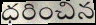
ధరించిన